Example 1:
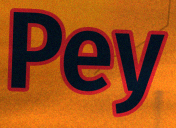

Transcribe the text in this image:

Pey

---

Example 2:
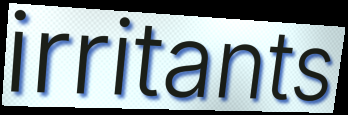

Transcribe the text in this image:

irritants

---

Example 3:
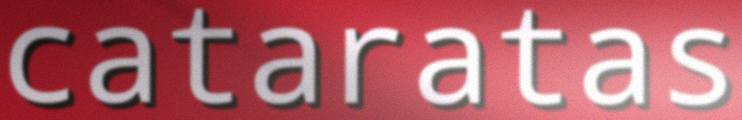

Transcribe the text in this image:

cataratas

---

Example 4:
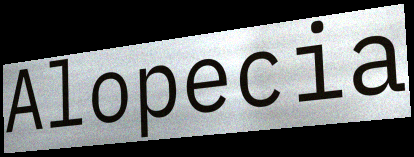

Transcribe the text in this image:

Alopecia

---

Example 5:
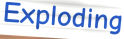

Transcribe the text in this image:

Exploding